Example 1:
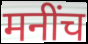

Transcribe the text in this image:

मनींच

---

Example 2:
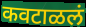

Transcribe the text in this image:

कवटाळलं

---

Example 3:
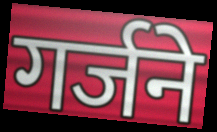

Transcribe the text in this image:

गर्जने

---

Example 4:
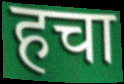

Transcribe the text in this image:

हचा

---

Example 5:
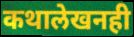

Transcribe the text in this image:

कथालेखनही